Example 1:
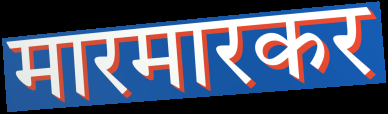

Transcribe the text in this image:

मारमारकर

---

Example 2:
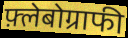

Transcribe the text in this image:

फ़्लेबोग्राफी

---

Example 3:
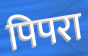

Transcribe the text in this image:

पिपरा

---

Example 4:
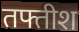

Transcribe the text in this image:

तफ्तीश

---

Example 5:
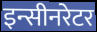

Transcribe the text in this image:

इन्सीनरेटर